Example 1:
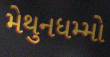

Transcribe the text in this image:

મેથુનધમ્મો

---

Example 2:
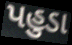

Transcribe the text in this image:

પહુડા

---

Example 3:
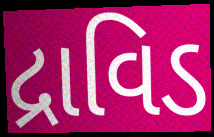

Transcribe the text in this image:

દ્રાવિડ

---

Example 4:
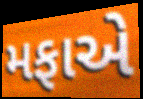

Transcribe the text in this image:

મફાએ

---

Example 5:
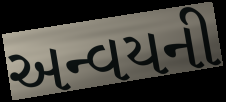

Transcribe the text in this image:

અન્વયની